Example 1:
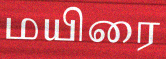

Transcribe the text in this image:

மயிரை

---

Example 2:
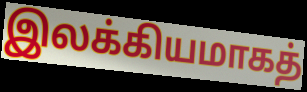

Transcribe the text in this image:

இலக்கியமாகத்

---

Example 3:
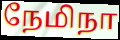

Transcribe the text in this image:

நேமிநா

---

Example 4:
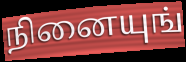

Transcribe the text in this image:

நினையுங்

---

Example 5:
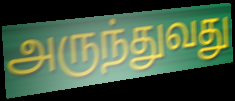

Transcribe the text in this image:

அருந்துவது